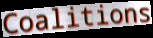
Coalitions